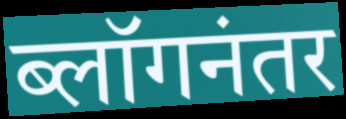
ब्लॉगनंतर